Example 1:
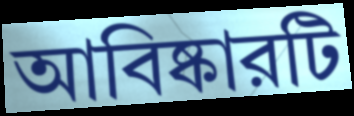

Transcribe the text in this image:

আবিষ্কারটি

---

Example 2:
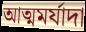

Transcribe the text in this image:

আত্মমর্যাদা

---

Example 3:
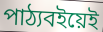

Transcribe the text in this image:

পাঠ্যবইয়েই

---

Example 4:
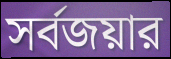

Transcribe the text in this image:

সর্বজয়ার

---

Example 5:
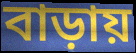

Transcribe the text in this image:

বাড়ায়